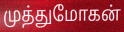
முத்துமோகன்